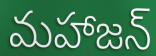
మహాజన్